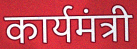
कार्यमंत्री